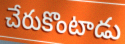
చేరుకొంటాడు